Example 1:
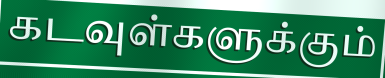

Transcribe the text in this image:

கடவுள்களுக்கும்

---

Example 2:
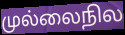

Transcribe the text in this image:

முல்லைநில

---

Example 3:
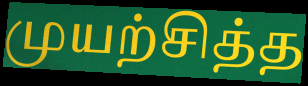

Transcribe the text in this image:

முயற்சித்த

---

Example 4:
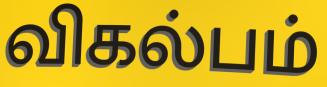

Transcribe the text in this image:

விகல்பம்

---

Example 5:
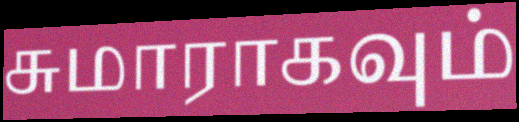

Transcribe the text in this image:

சுமாராகவும்